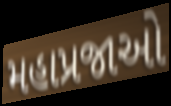
મહાપ્રજાઓ